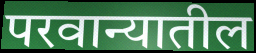
परवान्यातील